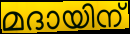
മദായിന്